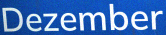
Dezember